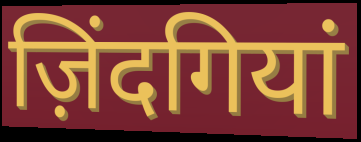
ज़िंदगियां